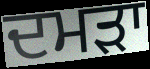
ਦਮੜਾ